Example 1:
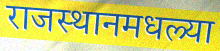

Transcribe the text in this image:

राजस्थानमधल्या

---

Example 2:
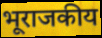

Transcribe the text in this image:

भूराजकीय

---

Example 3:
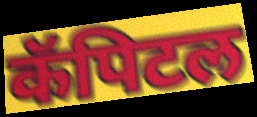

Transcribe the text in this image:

कॅपिटल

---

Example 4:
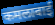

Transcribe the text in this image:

कमलाबाई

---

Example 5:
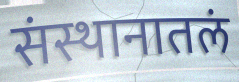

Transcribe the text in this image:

संस्थानातलं